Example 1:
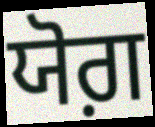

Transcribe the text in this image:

ਯੋਗ਼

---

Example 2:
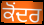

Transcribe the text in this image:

ਕੋਂਦਰ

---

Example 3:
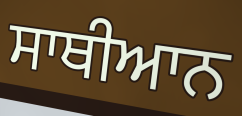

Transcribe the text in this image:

ਸਾਥੀਆਨ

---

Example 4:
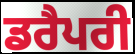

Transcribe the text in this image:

ਡਰੈਪਰੀ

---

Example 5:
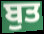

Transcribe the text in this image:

ਬੁਤ